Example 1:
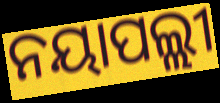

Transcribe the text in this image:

ନୟାପଲ୍ଲୀ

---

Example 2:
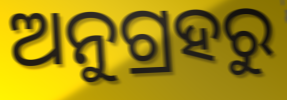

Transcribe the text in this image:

ଅନୁଗ୍ରହରୁ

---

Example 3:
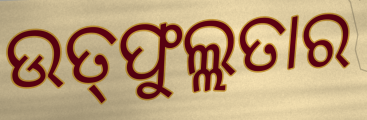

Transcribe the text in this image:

ଉତ୍‌ଫୁଲ୍ଲତାର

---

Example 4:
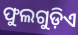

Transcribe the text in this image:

ଫୁଲଗୁଡ଼ିଏ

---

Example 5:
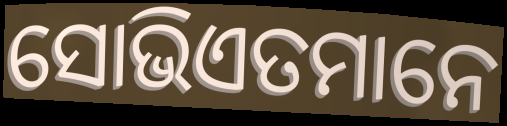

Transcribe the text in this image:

ସୋଭିଏତମାନେ